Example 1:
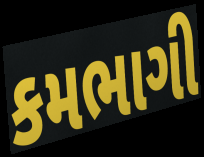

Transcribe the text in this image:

કમભાગી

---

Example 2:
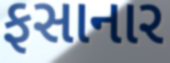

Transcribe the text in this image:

ફસાનાર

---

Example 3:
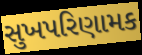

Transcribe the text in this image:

સુખપરિણામક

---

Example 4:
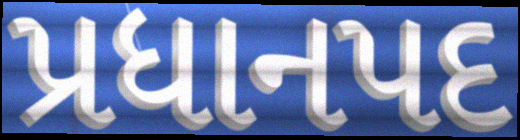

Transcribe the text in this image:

પ્રધાનપદ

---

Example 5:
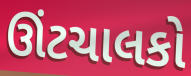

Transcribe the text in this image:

ઊંટચાલકો